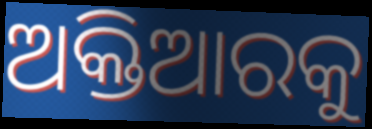
ଅକ୍ତିଆରକୁ